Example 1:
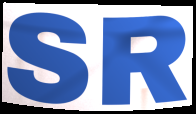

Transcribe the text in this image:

SR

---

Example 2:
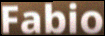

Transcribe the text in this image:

Fabio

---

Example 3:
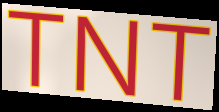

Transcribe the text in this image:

TNT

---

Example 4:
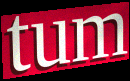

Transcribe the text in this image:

tum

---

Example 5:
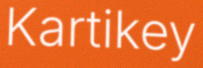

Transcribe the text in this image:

Kartikey